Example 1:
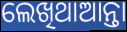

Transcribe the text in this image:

ଲେଖିଥାଆନ୍ତା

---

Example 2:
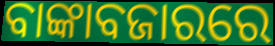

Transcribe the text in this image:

ବାଙ୍କାବଜାରରେ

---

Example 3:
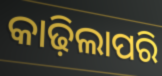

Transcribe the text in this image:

କାଢ଼ିଲାପରି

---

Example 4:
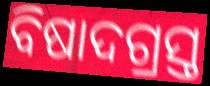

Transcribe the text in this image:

ବିଷାଦଗ୍ରସ୍ତ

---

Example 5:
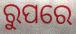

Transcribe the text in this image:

ରୁପରେ